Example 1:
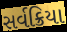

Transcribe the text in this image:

સર્વક્રિયા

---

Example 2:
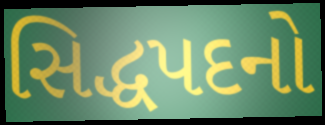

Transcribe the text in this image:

સિદ્ધપદનો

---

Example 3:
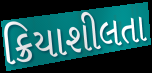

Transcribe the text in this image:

ક્રિયાશીલતા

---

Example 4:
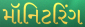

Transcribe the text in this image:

મૉનિટરિંગ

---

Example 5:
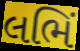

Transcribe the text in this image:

લભિં